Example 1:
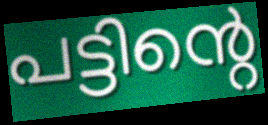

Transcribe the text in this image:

പട്ടിന്റെ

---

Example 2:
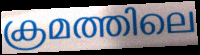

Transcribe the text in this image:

ക്രമത്തിലെ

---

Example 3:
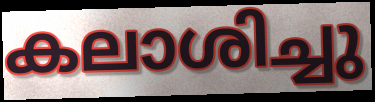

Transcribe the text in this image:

കലാശിച്ചു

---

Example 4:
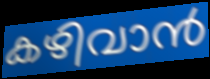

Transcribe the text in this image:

കഴിവാൻ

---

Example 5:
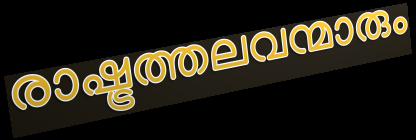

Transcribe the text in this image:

രാഷ്ട്രത്തലവന്മാരും